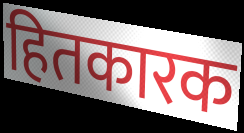
हितकारक